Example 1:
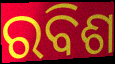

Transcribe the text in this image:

ରବିଶ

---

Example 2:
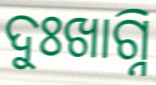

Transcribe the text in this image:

ଦୁଃଖାଗ୍ନି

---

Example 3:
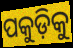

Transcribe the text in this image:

ପକୁଡ଼ିକୁ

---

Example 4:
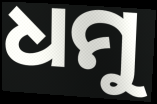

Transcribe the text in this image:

ଧମୁ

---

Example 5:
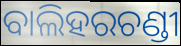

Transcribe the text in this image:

ବାଲିହରଚଣ୍ଡୀ